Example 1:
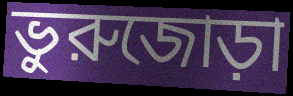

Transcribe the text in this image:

ভুরুজোড়া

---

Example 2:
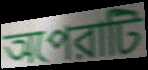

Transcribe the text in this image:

অপেরাটি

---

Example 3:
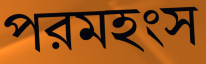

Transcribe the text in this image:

পরমহংস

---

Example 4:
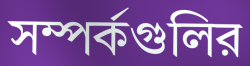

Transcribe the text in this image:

সম্পর্কগুলির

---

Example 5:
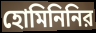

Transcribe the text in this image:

হোমিনিনির